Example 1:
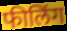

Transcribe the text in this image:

फीलिंग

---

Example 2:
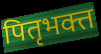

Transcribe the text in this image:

पितृभक्त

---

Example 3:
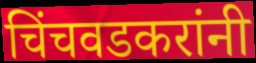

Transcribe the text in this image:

चिंचवडकरांनी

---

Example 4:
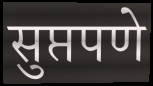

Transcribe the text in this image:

सुप्तपणे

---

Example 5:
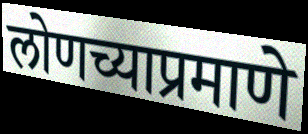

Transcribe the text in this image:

लोणच्याप्रमाणे